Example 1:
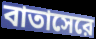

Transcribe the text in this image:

বাতাসেরে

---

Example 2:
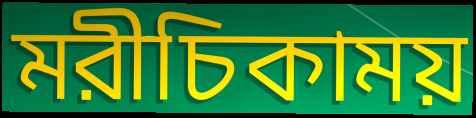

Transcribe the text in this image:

মরীচিকাময়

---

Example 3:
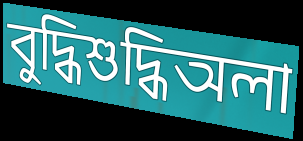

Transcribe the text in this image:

বুদ্ধিশুদ্ধিঅলা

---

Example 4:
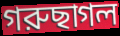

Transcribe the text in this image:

গরুছাগল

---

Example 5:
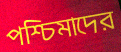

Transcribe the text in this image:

পশ্চিমাদের